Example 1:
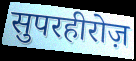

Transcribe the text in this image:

सुपरहीरोज़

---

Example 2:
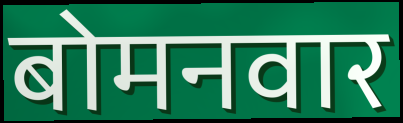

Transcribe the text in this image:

बोमनवार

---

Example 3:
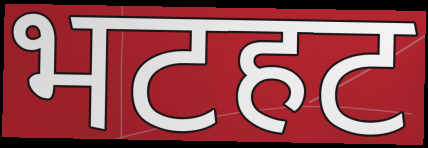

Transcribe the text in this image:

भटहट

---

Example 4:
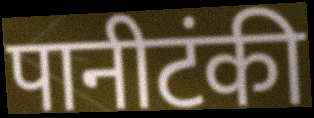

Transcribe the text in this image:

पानीटंकी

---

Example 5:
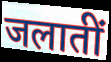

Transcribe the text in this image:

जलातीं